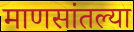
माणसांतल्या